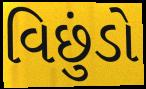
વિછુંડો